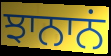
ਝਾਨਾਨਂ